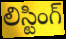
లిస్టింగ్